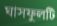
ঘাসফুলটি